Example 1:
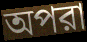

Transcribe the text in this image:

অপরা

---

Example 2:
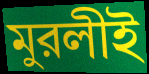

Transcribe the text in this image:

মুরলীই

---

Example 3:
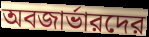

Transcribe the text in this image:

অবজার্ভারদের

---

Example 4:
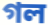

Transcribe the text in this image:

গল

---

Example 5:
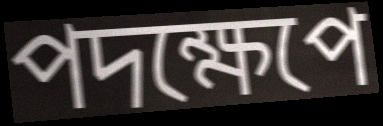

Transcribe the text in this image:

পদক্ষেপে